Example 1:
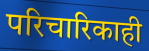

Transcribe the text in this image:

परिचारिकाही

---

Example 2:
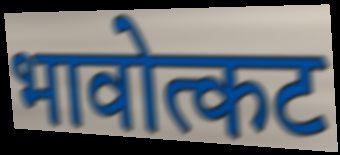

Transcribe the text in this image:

भावोत्कट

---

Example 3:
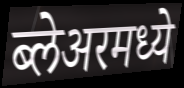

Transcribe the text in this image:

ब्लेअरमध्ये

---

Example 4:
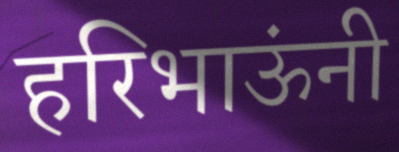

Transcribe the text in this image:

हरिभाऊंनी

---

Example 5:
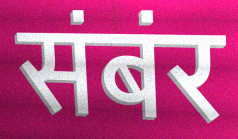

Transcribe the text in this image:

संबंर